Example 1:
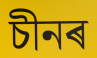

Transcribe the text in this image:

চীনৰ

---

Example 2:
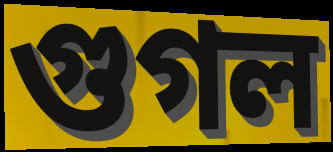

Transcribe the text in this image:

গুগল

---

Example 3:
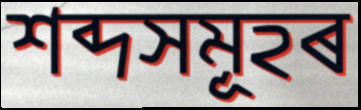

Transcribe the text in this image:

শব্দসমূহৰ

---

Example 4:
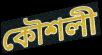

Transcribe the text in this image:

কৌশলী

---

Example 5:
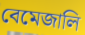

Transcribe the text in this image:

বেমেজালি